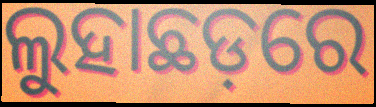
ଲୁହାଛଡ଼ରେ